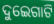
ଦୁଇେଗାଟି